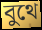
বুথে